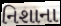
નિશાના